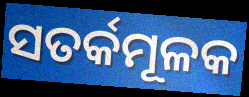
ସତର୍କମୂଳକ